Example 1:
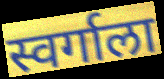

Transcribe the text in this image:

स्वर्गाला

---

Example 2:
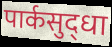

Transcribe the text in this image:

पार्कसुद्धा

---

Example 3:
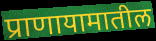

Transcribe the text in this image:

प्राणायामातील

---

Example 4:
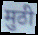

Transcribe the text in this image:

मुठी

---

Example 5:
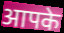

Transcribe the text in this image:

आपके